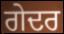
ਗੇਦਰ